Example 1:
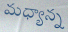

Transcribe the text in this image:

మధ్యాన్న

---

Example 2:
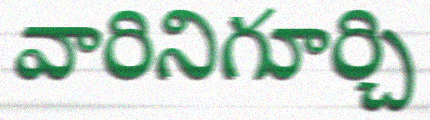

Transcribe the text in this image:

వారినిగూర్చి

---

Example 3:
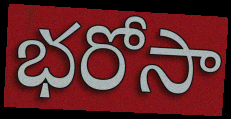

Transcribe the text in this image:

భరోసా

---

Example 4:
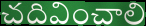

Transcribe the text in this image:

చదివించాలి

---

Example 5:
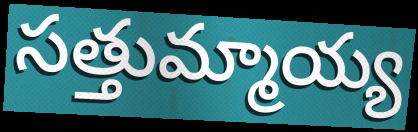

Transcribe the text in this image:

సత్తుమ్మాయ్య